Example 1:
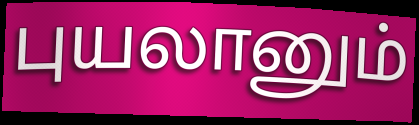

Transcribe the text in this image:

புயலானும்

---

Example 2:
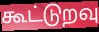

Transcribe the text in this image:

கூட்டுறவு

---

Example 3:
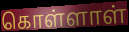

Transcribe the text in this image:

கொள்ளாள்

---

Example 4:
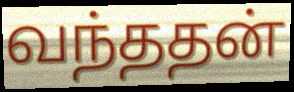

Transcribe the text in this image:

வந்ததன்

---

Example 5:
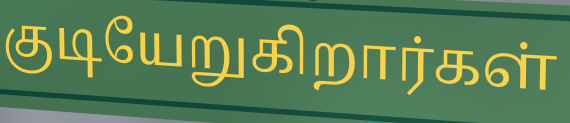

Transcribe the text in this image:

குடியேறுகிறார்கள்